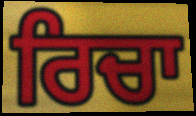
ਰਿਚਾ